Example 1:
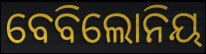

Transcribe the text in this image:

ବେବିଲୋନିୟ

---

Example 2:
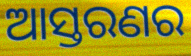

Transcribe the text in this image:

ଆସ୍ତରଣର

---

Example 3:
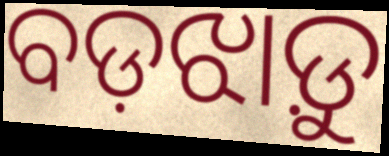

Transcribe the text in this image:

ବଡ଼ଝାଡ଼ୁ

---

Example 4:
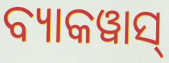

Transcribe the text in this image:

ବ୍ୟାକୱାସ୍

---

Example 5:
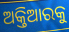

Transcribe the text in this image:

ଅକ୍ତିଆରକୁ